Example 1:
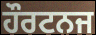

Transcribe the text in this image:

ਹੌਰਟਨਜ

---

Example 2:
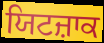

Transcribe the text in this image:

ਯਿਟਜ਼ਾਕ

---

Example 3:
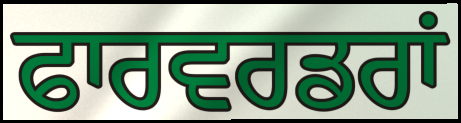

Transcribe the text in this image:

ਫਾਰਵਰਡਰਾਂ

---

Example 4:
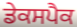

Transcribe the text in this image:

ਡੇਕਸਪੈਕ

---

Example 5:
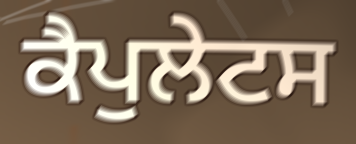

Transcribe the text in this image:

ਕੈਪੁਲੇਟਸ